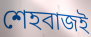
শেহবাজই